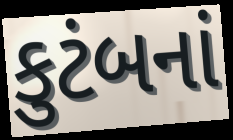
કુટંબનાં